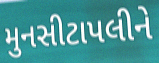
મુનસીટાપલીને